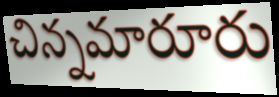
చిన్నమారూరు